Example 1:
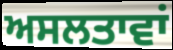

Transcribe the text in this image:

ਅਸਲਤਾਵਾਂ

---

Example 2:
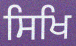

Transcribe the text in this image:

ਸਿਖਿ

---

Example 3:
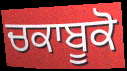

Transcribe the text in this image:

ਚਕਾਬੂਕੋ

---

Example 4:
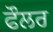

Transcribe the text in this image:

ਫੌਲਰ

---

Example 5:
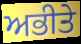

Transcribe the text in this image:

ਅਭੀਤੇ